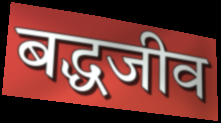
बद्धजीव